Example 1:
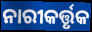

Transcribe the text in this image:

ନାରୀକର୍ତ୍ତୃକ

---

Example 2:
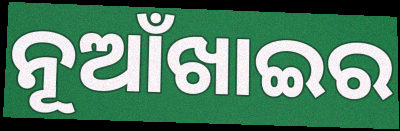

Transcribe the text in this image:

ନୂଆଁଖାଇର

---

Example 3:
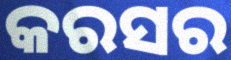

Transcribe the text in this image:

କରସର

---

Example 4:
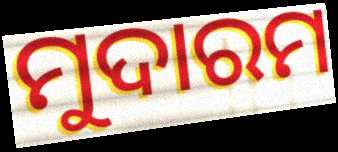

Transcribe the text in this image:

ମୁଦାରମ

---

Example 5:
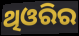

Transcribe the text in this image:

ଥିଓରିର